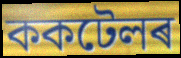
ককটেলৰ